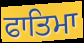
ਫਾਤਿਮਾ